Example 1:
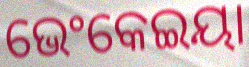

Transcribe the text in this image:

ଭେଂକେଇୟା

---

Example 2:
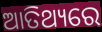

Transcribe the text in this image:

ଆତିଥ୍ୟରେ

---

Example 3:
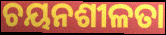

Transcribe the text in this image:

ଚୟନଶୀଳତା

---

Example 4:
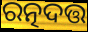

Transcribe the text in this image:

ରତ୍ନଦତ୍ତ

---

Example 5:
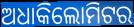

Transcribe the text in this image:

ଅଧାକିଲୋମିଟର